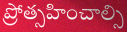
ప్రోత్సహించాల్సి